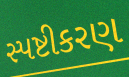
સ્પષ્ટીકરણ